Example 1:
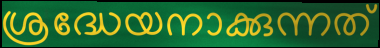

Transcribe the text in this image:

ശ്രദ്ധേയനാക്കുന്നത്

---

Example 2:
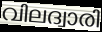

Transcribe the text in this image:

വിലദ്വാരി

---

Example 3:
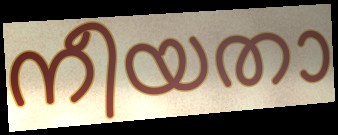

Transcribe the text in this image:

നീയതാ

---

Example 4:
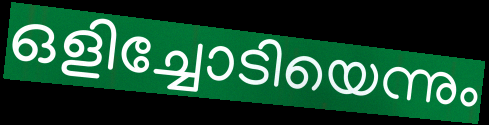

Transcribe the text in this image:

ഒളിച്ചോടിയെന്നും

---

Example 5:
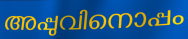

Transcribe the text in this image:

അപ്പുവിനൊപ്പം